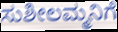
ಸುಶೀಲಮ್ಮನಿಗೆ